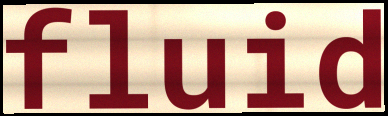
fluid